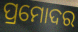
ପ୍ରମୋଦର